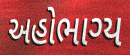
અહોભાગ્ય